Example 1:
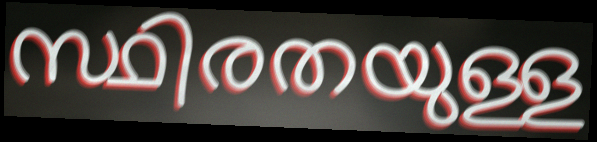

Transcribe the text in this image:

സ്ഥിരതയുള്ള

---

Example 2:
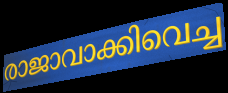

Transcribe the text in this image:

രാജാവാക്കിവെച്ച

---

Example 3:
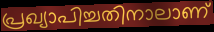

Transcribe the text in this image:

പ്രഖ്യാപിച്ചതിനാലാണ്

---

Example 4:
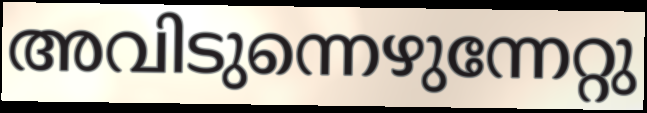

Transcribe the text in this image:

അവിടുന്നെഴുന്നേറ്റു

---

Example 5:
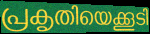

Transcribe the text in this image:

പ്രകൃതിയെക്കൂടി